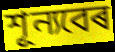
শূন্যবেৰ